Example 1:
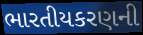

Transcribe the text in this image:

ભારતીયકરણની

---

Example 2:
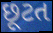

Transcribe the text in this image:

છૂટત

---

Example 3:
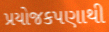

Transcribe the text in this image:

પ્રયોજકપણાથી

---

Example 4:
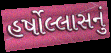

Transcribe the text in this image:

હર્ષોલ્લાસનું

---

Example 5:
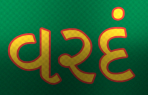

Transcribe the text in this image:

વરદં